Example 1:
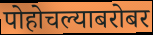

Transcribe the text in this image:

पोहोचल्याबरोबर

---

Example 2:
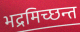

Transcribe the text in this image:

भद्रमिच्छन्त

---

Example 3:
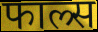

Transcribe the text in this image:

फाल्स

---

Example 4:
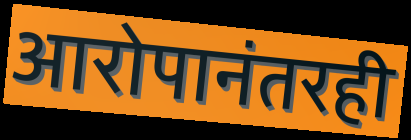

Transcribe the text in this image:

आरोपानंतरही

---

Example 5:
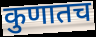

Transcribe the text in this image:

कुणातच